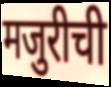
मजुरीची